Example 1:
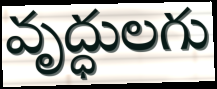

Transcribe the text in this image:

వృద్ధులగు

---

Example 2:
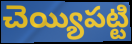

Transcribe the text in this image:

చెయ్యిపట్టి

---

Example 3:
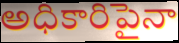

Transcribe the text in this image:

అధికారిపైనా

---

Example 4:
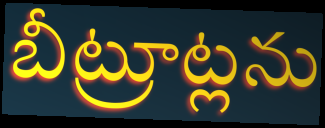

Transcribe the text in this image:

బీట్రూట్లను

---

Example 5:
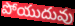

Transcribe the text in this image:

పోయుదువు